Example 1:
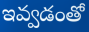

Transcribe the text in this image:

ఇవ్వడంతో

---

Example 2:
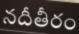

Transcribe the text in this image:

నదీతీరం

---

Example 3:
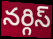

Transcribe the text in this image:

నర్గిస్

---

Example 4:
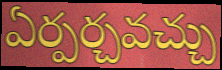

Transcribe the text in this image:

ఏర్పర్చవచ్చు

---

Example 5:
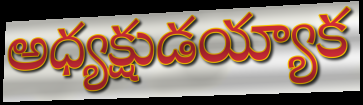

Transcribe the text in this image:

అధ్యక్షుడయ్యాక